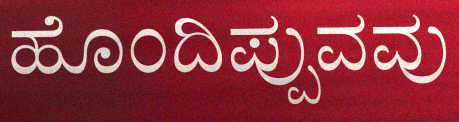
ಹೊಂದಿಪ್ಪುವವು